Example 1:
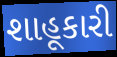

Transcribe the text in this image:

શાહૂકારી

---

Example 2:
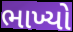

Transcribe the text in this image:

ભાખ્યો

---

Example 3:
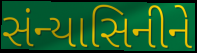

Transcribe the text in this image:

સંન્યાસિનીને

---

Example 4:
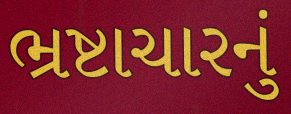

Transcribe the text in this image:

ભ્રષ્ટાચારનું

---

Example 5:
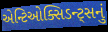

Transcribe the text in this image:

એન્ટિઓક્સિડન્ટ્સનું